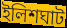
ইলিশঘাট